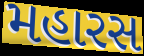
મહારસ